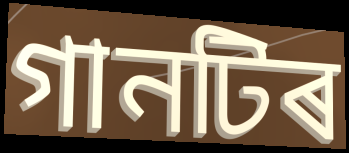
গানটিৰ